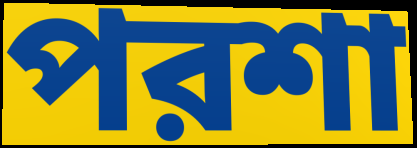
পরশা